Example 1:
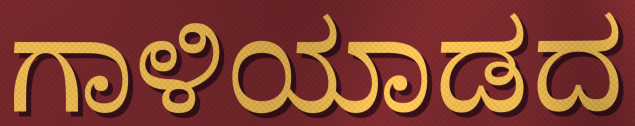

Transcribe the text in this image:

ಗಾಳಿಯಾಡದ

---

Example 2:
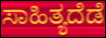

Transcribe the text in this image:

ಸಾಹಿತ್ಯದೆಡೆ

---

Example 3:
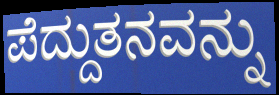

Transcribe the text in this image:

ಪೆದ್ದುತನವನ್ನು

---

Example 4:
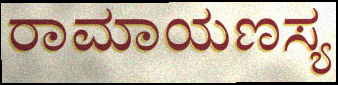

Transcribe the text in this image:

ರಾಮಾಯಣಸ್ಯ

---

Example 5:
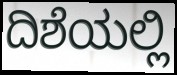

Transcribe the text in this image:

ದಿಶೆಯಲ್ಲಿ